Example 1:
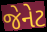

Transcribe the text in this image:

જેનેટ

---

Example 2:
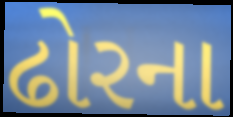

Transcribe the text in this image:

ઢોરના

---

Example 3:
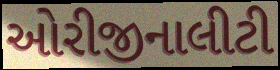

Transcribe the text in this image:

ઓરીજીનાલીટી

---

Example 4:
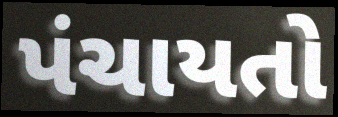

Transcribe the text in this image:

પંચાયતો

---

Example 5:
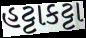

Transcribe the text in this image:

હટ્ટાકટ્ટા